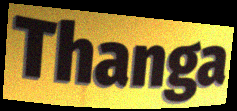
Thanga